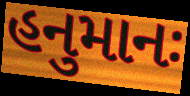
હનુમાનઃ